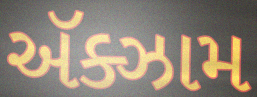
ઍક્ઝામ